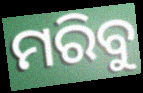
ମରିବୁ